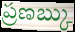
ప్రణబ్కు